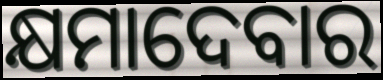
କ୍ଷମାଦେବାର